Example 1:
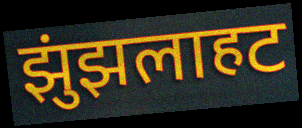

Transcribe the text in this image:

झुंझलाहट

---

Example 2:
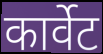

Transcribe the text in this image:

कार्वेट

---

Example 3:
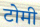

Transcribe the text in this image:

टोमी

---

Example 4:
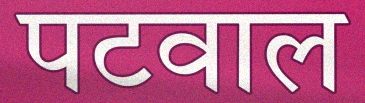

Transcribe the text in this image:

पटवाल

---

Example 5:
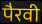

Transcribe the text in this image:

पैरवी